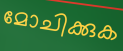
മോചിക്കുക